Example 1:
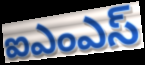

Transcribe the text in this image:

ఐఎంఎస్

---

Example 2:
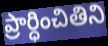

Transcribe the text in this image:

ప్రార్ధించితిని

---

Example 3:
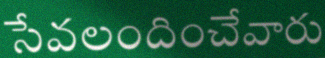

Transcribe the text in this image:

సేవలందించేవారు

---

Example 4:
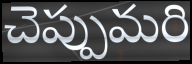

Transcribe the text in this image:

చెప్పుమరి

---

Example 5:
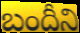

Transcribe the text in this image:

బందీని